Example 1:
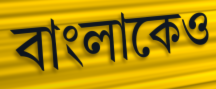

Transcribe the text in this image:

বাংলাকেও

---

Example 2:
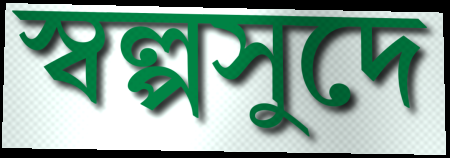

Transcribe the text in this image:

স্বল্পসুদে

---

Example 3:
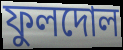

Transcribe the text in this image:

ফুলদোল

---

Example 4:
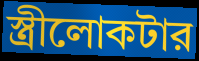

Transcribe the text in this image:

স্ত্রীলোকটার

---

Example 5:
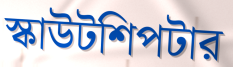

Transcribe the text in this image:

স্কাউটশিপটার